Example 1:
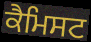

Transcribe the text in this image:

ਕੈਮਿਸਟ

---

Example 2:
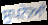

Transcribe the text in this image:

ਸੁਪਨੇਆਂ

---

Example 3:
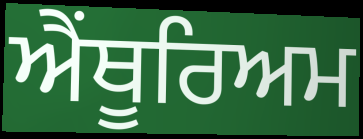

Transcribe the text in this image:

ਐਂਥੂਰਿਅਮ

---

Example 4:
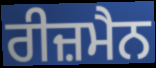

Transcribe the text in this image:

ਰੀਜ਼ਮੈਨ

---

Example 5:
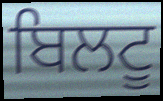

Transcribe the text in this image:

ਬਿਲਟੂ